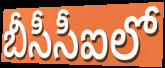
బీసీసీఐలో